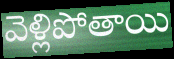
వెళ్లిపోతాయి